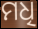
ମଧି